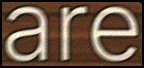
are